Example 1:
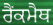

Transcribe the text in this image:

ਰੈਂਕਮੈਥ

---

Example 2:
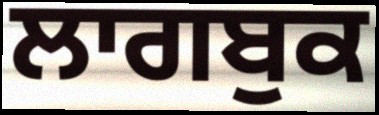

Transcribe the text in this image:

ਲਾਗਬੁਕ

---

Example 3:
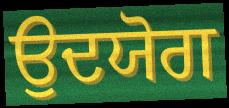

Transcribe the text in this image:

ਉਦਯੋਗ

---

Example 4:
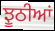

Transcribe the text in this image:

ਝੂਠੀਆਂ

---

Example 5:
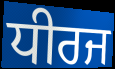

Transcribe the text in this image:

ਧੀਰਜ